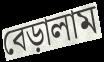
বেড়ালাম